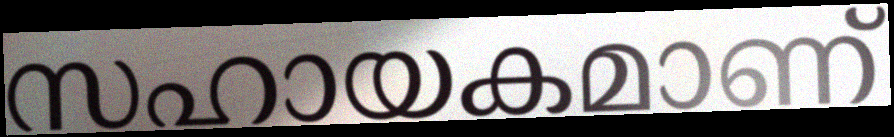
സഹായകമാണ്